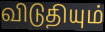
விடுதியும்